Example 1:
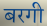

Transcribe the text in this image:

बरगी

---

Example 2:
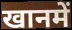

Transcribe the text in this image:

खानमें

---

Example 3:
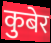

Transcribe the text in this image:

कुबेर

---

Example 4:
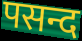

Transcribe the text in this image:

पसन्द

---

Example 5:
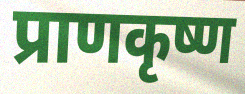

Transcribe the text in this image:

प्राणकृष्ण